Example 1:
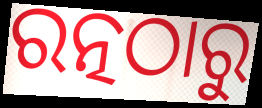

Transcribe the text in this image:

ରତ୍ନଠାରୁ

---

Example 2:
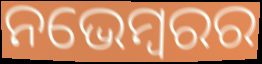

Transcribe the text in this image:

ନଭେମ୍ବରର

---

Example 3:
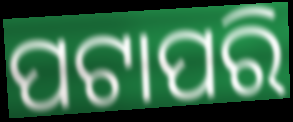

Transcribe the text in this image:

ପଟାପରି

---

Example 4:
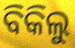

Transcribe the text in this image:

ବିକିଲୁ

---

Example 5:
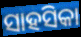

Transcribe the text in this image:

ସାହସିକା